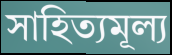
সাহিত্যমূল্য